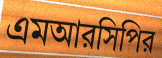
এমআরসিপির